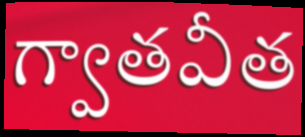
గ్వాతవీత